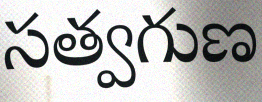
సత్వగుణ